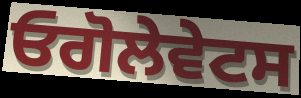
ਓਗੋਲੇਵੇਟਸ